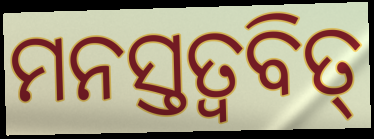
ମନସ୍ତତ୍ୱବିତ୍